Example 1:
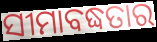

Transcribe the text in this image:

ସୀମାବଦ୍ଧତାର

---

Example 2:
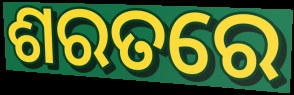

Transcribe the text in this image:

ଶରତରେ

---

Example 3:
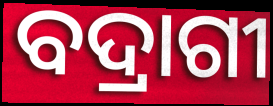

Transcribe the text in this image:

ବଦ୍ରାଗୀ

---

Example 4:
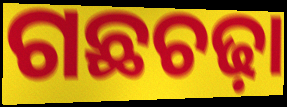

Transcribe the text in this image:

ଗଛଚଢ଼ା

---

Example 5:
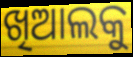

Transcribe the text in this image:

ଖିଆଲକୁ